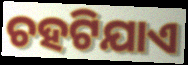
ଚହଟିଯାଏ